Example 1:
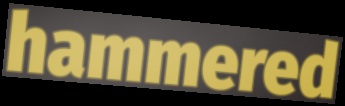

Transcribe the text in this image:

hammered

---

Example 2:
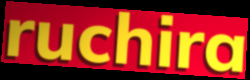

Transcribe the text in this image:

ruchira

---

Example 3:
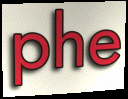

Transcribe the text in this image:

phe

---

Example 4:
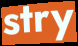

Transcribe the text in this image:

stry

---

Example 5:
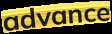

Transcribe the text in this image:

advance